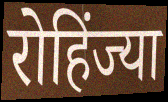
रोहिंज्या